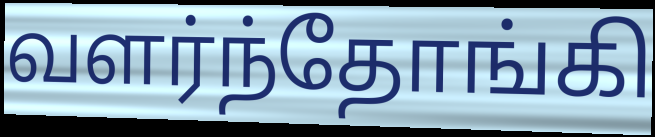
வளர்ந்தோங்கி